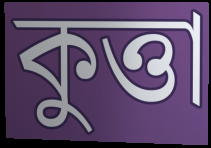
কুত্তা